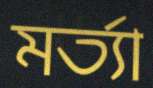
মর্ত্যা